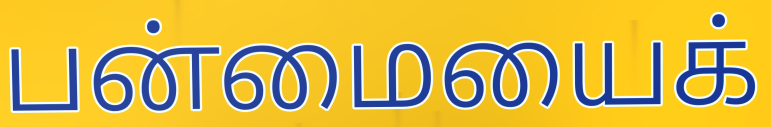
பன்மையைக்